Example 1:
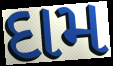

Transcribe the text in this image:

દામ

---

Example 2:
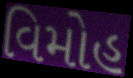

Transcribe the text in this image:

વિમોહ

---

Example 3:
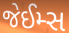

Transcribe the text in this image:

જેઈમ્સ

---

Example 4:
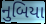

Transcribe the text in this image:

નુબિયા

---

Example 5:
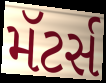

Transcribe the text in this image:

મૅટર્સ